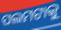
ପଲମଟାକୁ